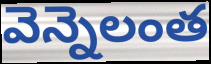
వెన్నెలంత